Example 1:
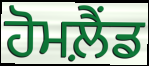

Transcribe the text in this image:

ਹੋਮਲ਼ੈਂਡ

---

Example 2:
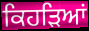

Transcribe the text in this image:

ਕਿਹੜਿਆਂ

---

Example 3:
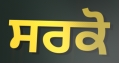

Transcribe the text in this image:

ਸਰਕੋ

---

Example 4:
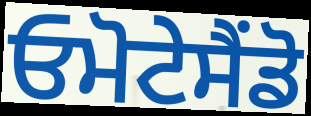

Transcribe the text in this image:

ਓਮੋਟੇਸੈਂਡੋ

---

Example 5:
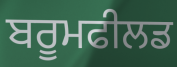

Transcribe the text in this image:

ਬਰੂਮਫੀਲਡ